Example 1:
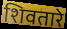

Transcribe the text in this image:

शिवतारे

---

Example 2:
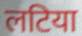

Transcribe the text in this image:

लटिया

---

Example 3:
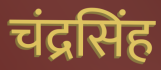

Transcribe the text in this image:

चंद्रसिंह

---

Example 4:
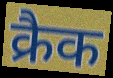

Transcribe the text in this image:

क्रैक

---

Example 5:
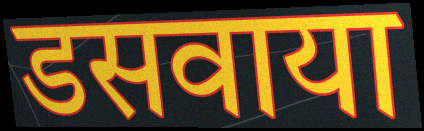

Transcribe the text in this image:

डसवाया